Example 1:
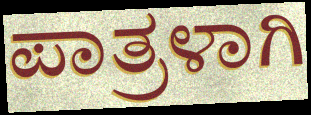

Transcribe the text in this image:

ಪಾತ್ರಳಾಗಿ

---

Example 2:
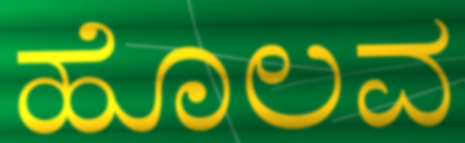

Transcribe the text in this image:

ಹೊಲವ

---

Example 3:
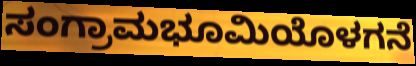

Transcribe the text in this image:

ಸಂಗ್ರಾಮಭೂಮಿಯೊಳಗನೆ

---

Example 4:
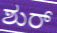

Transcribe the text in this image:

ಶುರ್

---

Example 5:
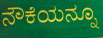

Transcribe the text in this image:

ನೌಕೆಯನ್ನೂ